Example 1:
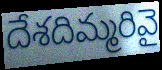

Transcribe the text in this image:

దేశదిమ్మరివై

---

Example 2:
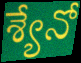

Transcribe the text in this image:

శ్యేనో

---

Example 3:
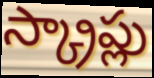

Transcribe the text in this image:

స్క్రాప్లు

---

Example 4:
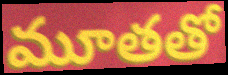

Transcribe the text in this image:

మూతతో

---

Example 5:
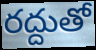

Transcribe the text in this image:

రద్దుతో